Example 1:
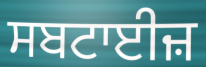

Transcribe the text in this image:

ਸਬਟਾਈਜ਼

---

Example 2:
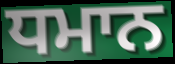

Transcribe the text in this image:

ਧਮਾਨ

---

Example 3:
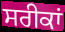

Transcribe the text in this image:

ਸਰੀਕਾਂ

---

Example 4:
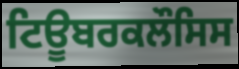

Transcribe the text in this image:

ਟਿਊਬਰਕਲੌਸਿਸ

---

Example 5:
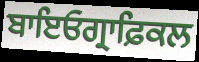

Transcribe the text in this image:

ਬਾਇਓਗ੍ਰਾਫ਼ਿਕਲ